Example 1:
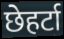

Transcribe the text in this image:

छेहर्टा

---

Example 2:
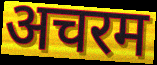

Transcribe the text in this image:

अचरम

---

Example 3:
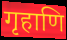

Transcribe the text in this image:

गृहाणि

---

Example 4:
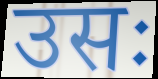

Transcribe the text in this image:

उसः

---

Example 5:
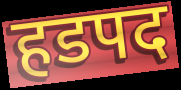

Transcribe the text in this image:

हडपद